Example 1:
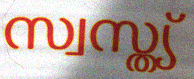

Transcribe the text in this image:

സ്വസ്ത്യ്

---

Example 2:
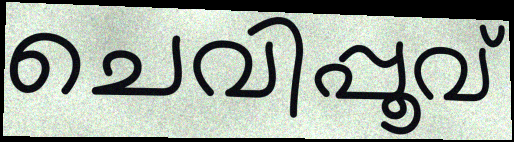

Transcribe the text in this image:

ചെവിപ്പൂവ്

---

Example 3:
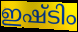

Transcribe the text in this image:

ഇഷ്ടിം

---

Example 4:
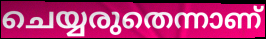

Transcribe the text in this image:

ചെയ്യരുതെന്നാണ്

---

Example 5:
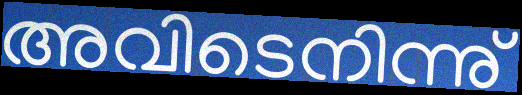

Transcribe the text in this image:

അവിടെനിന്നു്